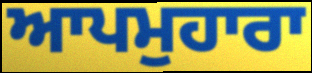
ਆਪਮੁਹਾਰਾ